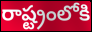
రాష్ట్రంలోకి